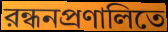
রন্ধনপ্রণালিতে